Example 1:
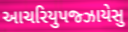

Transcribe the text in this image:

આચરિયુપજ્ઝાયેસુ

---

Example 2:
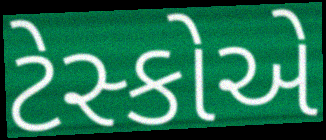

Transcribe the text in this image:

ટેસ્કોએ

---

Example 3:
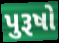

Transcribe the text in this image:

પુરૂષો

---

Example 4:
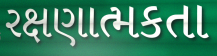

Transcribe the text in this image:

રક્ષણાત્મકતા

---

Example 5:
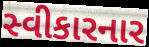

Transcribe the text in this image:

સ્વીકારનાર